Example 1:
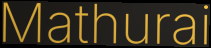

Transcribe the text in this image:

Mathurai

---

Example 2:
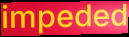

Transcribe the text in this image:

impeded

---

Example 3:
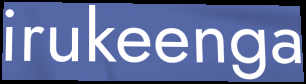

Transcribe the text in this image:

irukeenga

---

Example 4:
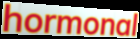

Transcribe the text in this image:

hormonal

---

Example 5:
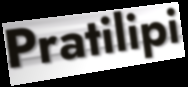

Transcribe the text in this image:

Pratilipi